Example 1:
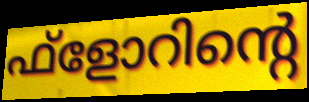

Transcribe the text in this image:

ഫ്ളോറിന്റെ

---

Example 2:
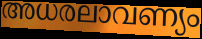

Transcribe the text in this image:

അധരലാവണ്യം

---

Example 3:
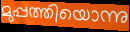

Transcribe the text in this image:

മുപ്പത്തിയൊന്നു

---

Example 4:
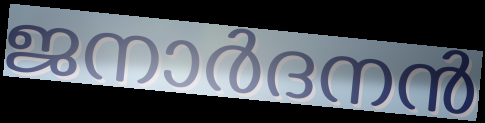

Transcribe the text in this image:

ജനാർദനൻ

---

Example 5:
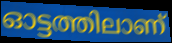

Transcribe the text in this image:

ഓട്ടത്തിലാണ്